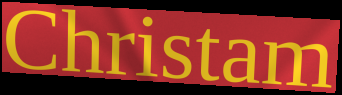
Christam